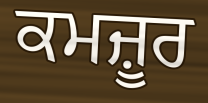
ਕਮਜ਼ੂਰ